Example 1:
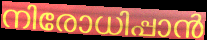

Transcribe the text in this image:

നിരോധിപ്പാൻ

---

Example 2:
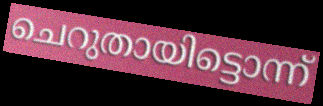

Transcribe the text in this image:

ചെറുതായിട്ടൊന്ന്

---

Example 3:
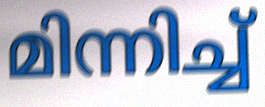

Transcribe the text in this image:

മിന്നിച്ച്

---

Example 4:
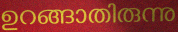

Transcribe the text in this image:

ഉറങ്ങാതിരുന്നു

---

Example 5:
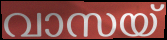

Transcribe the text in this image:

വാസയ്